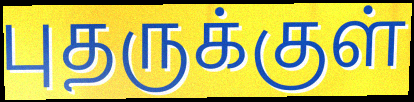
புதருக்குள்